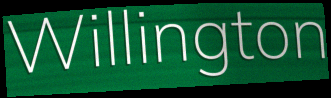
Willington